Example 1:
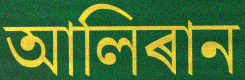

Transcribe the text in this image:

আলিৰান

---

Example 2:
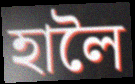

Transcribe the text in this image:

হালৈ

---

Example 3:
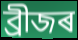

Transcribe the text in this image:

ব্ৰীজৰ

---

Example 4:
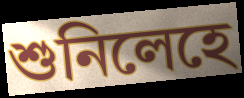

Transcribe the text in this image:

শুনিলেহে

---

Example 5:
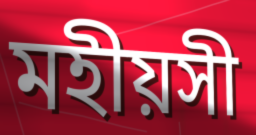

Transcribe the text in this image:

মহীয়সী